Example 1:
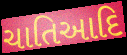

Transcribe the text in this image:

ચાતિઆદિ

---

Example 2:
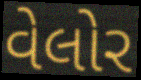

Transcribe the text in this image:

વેલોર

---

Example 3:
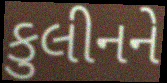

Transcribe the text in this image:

કુલીનને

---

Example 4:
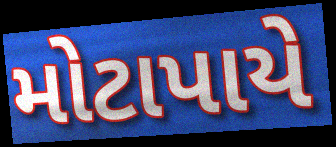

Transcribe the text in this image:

મોટાપાયે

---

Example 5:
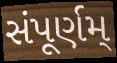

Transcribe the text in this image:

સંપૂર્ણમ્